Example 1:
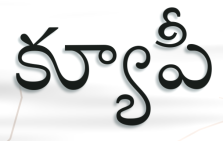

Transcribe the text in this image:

క్యూపీ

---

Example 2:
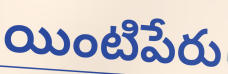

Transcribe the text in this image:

యింటిపేరు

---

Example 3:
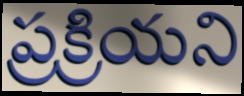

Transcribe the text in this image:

ప్రక్రియని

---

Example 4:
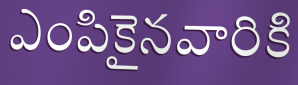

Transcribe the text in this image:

ఎంపికైనవారికి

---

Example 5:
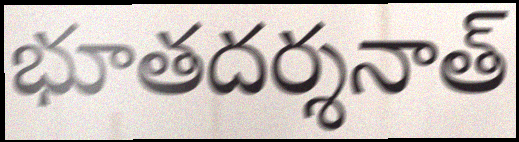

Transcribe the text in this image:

భూతదర్శనాత్